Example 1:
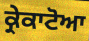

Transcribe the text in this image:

ਕ੍ਰੇਕਾਟੋਆ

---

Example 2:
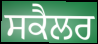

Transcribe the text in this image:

ਸਕੈਲਰ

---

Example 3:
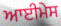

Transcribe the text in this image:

ਆਈਮੇਸ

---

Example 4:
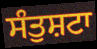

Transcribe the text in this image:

ਸੰਤੁਸ਼ਟਾ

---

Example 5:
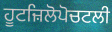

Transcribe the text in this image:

ਹੂਟਜ਼ਿਲੋਪੋਚਟਲੀ